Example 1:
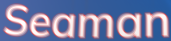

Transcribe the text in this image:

Seaman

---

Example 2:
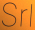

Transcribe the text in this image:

Srl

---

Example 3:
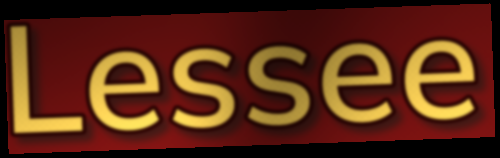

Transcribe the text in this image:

Lessee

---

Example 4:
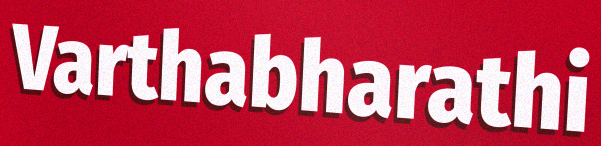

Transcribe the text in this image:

Varthabharathi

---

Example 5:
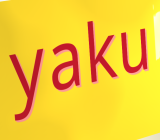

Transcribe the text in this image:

yaku